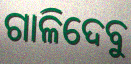
ଗାଳିଦେବୁ